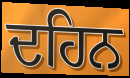
ਦਹਿਨ